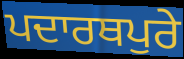
ਪਦਾਰਥਪੁਰੇ